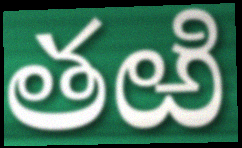
తఱి